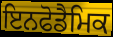
ਇਨਫੋਡੈਮਿਕ